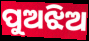
ପୁଅଝିଅ